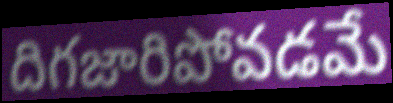
దిగజారిపోవడమే